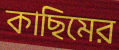
কাছিমের